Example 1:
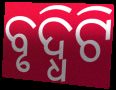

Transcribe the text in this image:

ବୃଦ୍ଧିଟି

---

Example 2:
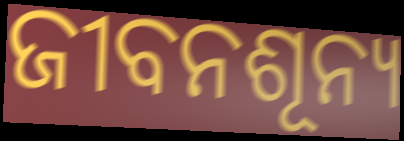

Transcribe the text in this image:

ଜୀବନଶୂନ୍ୟ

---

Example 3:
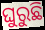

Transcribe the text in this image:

ଘୁରୁଛି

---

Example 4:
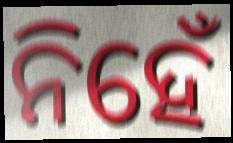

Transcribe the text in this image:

ନିହେଁ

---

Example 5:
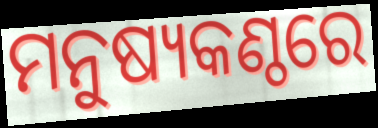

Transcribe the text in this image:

ମନୁଷ୍ୟକଣ୍ଠରେ